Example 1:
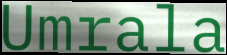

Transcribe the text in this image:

Umrala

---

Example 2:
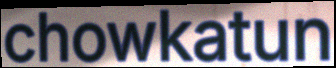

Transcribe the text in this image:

chowkatun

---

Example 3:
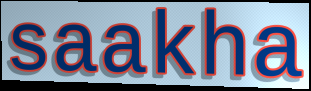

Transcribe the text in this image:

saakha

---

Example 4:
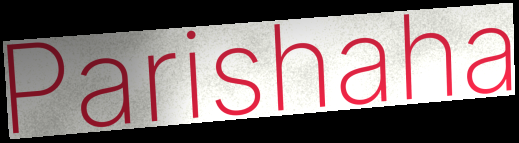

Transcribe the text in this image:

Parishaha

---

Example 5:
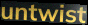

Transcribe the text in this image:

untwist